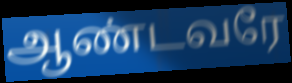
ஆண்டவரே